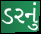
ડરનું